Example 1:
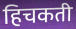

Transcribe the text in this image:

हिचकती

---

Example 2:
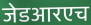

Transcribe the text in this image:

जेडआरएच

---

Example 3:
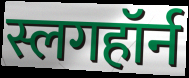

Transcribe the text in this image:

स्लगहॉर्न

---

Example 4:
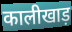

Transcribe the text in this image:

कालीखाड़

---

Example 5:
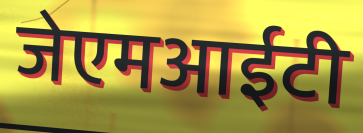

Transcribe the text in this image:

जेएमआईटी